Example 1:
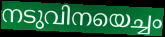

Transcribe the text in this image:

നടുവിനയെച്ചം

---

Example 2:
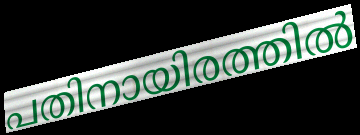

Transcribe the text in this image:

പതിനായിരത്തിൽ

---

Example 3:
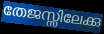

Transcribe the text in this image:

തേജസ്സിലേക്കു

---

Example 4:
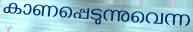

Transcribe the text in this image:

കാണപ്പെടുന്നുവെന്ന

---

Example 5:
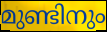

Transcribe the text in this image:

മുണ്ടിനും